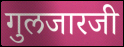
गुलजारजी